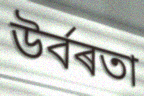
উৰ্বৰতা